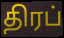
திரப்